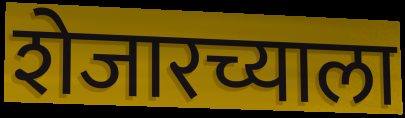
शेजारच्याला